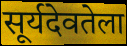
सूर्यदेवतेला